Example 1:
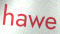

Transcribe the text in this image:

hawe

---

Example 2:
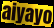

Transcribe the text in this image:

aiyayo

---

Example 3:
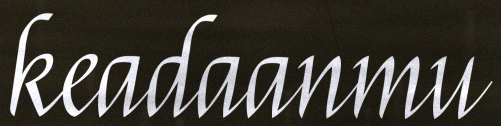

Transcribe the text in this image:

keadaanmu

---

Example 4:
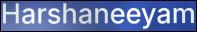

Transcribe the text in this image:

Harshaneeyam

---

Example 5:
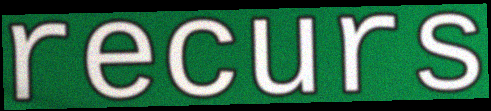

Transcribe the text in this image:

recurs